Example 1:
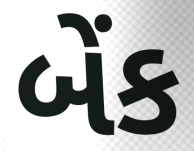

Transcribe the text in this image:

બેંક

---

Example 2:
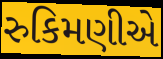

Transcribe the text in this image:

રુકિમણીએ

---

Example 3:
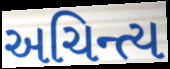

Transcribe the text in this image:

અચિન્ત્ય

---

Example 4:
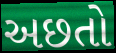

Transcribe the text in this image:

અછતો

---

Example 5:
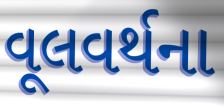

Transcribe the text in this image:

વૂલવર્થના